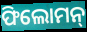
ଫିଲୋମନ୍